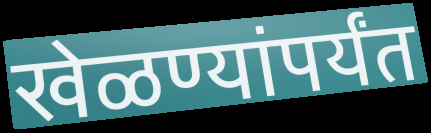
खेळण्यांपर्यंत